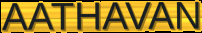
AATHAVAN